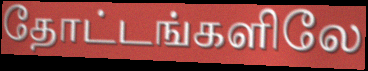
தோட்டங்களிலே